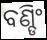
ବଣ୍ଡିଂ